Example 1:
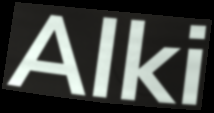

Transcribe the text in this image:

Alki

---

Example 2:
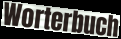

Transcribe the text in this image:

Worterbuch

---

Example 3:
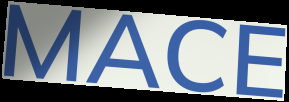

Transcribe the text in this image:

MACE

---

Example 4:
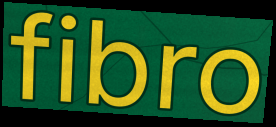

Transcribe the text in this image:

fibro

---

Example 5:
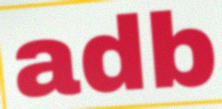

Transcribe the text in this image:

adb